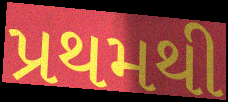
પ્રથમથી